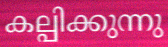
കല്പിക്കുന്നു